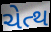
ચેત્થ